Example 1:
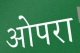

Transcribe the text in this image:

ओपरा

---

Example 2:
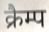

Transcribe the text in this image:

क्रैम्प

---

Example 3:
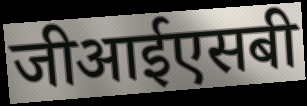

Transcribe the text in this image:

जीआईएसबी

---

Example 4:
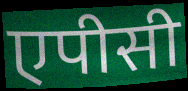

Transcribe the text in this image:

एपीसी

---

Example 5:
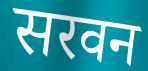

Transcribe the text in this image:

सरवन